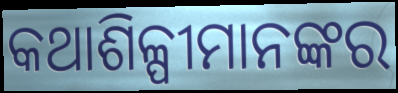
କଥାଶିଳ୍ପୀମାନଙ୍କର